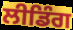
ਲੀਡਿੰਗ